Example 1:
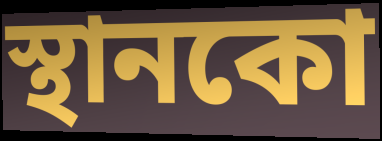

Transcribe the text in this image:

স্থানকো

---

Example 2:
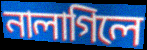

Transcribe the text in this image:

নালাগিলে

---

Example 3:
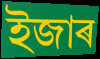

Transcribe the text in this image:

ইজাৰ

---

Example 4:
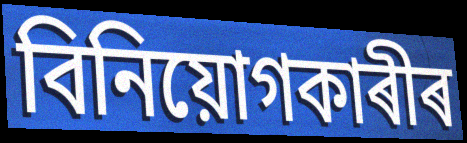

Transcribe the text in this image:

বিনিয়োগকাৰীৰ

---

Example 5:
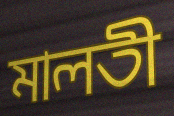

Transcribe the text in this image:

মালতী